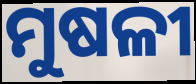
ମୁଷଳୀ